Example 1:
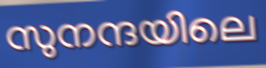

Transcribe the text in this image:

സുനന്ദയിലെ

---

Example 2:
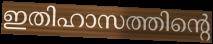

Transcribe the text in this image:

ഇതിഹാസത്തിന്റെ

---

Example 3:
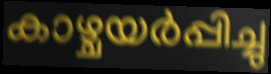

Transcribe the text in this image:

കാഴ്ചയർപ്പിച്ചു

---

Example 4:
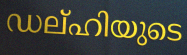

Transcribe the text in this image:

ഡല്ഹിയുടെ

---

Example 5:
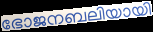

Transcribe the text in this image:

ഭോജനബലിയായി